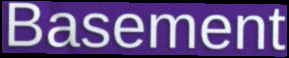
Basement